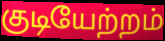
குடியேற்றம்